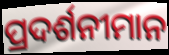
ପ୍ରଦର୍ଶନୀମାନ